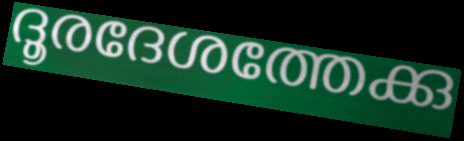
ദൂരദേശത്തേക്കു